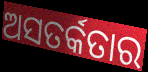
ଅସତର୍କତାର